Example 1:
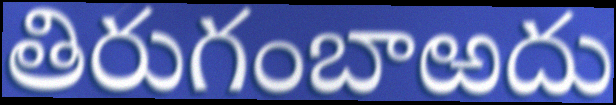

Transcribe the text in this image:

తిరుగంబాఱదు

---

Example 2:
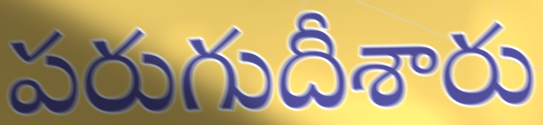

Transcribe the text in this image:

పరుగుదీశారు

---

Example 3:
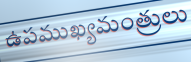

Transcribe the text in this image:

ఉపముఖ్యమంత్రులు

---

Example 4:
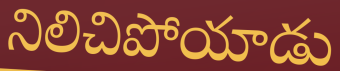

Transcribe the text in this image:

నిలిచిపోయాడు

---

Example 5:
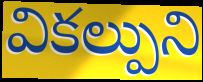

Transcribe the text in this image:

వికల్పుని